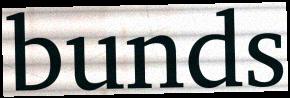
bunds